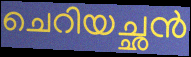
ചെറിയച്ഛൻ